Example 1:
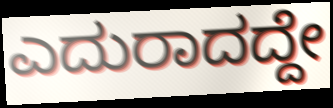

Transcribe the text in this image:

ಎದುರಾದದ್ದೇ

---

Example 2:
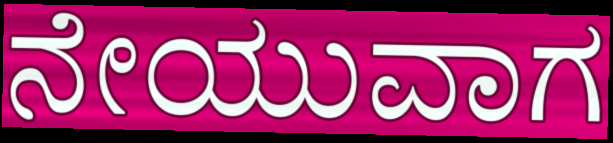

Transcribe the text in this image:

ನೇಯುವಾಗ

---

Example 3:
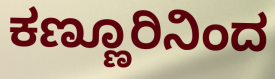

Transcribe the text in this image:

ಕಣ್ಣೂರಿನಿಂದ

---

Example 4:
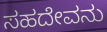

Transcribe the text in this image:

ಸಹದೇವನು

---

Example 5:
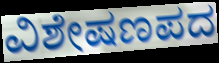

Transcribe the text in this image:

ವಿಶೇಷಣಪದ